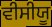
ਵੀਸੀਯੂ